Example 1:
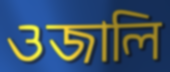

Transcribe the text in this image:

ওজালি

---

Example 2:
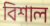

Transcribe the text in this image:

বিশাল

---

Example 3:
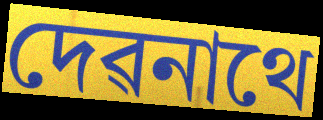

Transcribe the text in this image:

দেৱনাথে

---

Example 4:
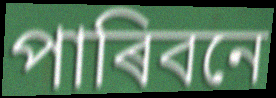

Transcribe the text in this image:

পাৰিবনে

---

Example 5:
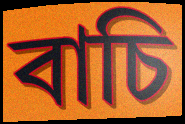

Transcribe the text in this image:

বাচি